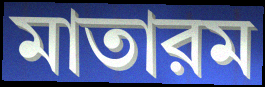
মাতারম